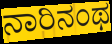
ನಾರಿನಂಥ